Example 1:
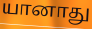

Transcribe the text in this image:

யானாது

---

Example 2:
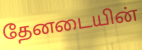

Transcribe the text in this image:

தேனடையின்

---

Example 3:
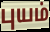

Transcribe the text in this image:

புயம்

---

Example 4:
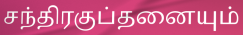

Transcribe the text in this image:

சந்திரகுப்தனையும்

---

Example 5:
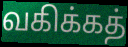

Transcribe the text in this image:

வகிக்கத்